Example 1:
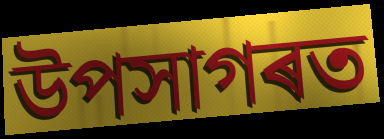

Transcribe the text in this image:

উপসাগৰত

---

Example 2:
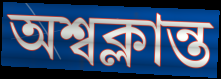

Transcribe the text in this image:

অশ্বক্লান্ত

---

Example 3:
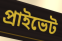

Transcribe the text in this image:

প্ৰাইভেট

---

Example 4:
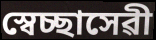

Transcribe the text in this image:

স্বেচ্ছাসেৱী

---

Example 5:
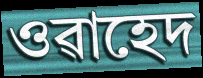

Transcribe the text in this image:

ওৱাহেদ